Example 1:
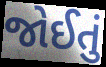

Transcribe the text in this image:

જોઈતું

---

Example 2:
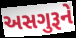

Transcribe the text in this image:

અસગુરૂને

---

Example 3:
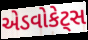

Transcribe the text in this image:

એડવોકેટ્સ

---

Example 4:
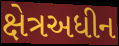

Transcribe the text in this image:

ક્ષેત્રઅધીન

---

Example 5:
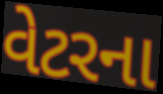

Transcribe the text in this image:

વેટરના